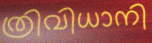
ത്രിവിധാനി